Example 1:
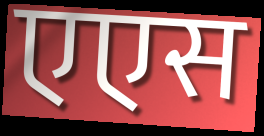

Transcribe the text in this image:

एएस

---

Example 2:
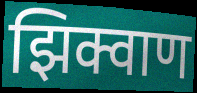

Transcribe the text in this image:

झिक्वाण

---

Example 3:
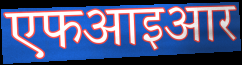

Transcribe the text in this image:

एफआइआर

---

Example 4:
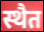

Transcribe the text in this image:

स्थैत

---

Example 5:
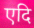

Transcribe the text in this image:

एदि